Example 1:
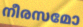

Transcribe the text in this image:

നീരസമോ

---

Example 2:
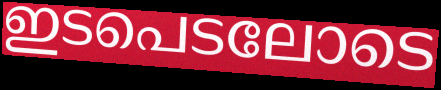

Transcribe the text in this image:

ഇടപെടലോടെ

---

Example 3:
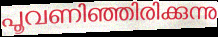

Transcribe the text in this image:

പൂവണിഞ്ഞിരിക്കുന്നു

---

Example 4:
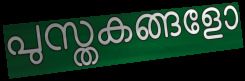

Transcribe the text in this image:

പുസ്തകങ്ങളോ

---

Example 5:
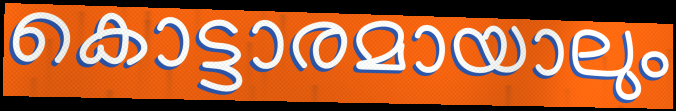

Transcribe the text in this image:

കൊട്ടാരമായാലും